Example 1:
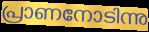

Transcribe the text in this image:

പ്രാണനോടിന്നു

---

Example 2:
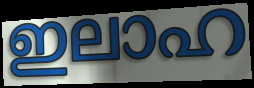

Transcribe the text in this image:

ഇലാഹ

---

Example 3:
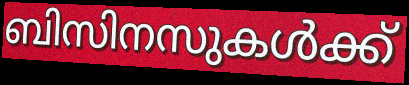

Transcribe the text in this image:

ബിസിനസുകൾക്ക്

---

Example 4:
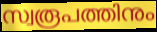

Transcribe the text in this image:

സ്വരൂപത്തിനും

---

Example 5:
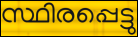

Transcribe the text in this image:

സ്ഥിരപ്പെട്ടു